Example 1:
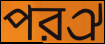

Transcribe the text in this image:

পরঐ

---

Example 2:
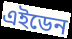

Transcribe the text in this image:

এইডেন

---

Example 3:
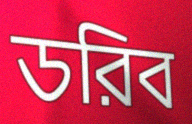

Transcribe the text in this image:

ডরিব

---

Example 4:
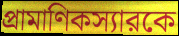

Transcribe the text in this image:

প্রামাণিকস্যারকে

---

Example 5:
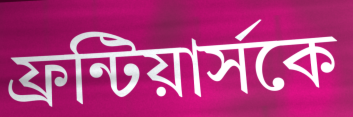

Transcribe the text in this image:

ফ্রন্টিয়ার্সকে